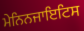
ਮੇਨਿਨਜਾਇਟਿਸ